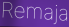
Remaja